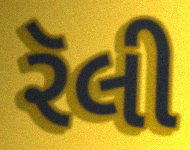
રૅલી